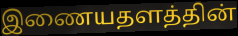
இணையதளத்தின்